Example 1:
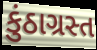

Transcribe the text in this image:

કુંઠાગ્રસ્ત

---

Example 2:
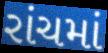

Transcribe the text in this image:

રાંચમાં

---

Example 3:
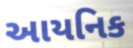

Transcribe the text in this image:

આયનિક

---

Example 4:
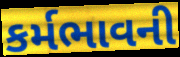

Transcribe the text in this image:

કર્મભાવની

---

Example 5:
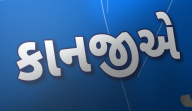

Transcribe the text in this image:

કાનજીએ